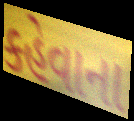
કહેવાના